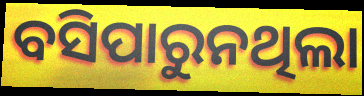
ବସିପାରୁନଥିଲା